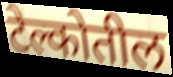
टेल्कोतील